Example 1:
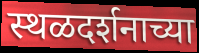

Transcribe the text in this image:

स्थळदर्शनाच्या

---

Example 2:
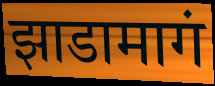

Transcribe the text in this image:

झाडामागं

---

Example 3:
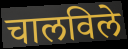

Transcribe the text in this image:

चालविले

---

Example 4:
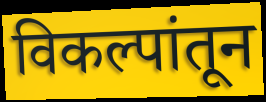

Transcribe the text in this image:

विकल्पांतून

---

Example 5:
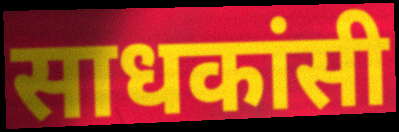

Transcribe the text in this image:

साधकांसी